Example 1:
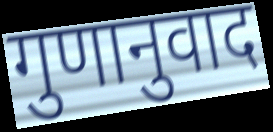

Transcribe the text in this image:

गुणानुवाद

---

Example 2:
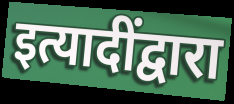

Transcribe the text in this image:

इत्यादींद्वारा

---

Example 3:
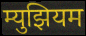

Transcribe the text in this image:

म्युझियम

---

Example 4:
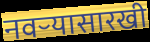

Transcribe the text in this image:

नवऱ्यासारखी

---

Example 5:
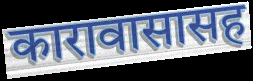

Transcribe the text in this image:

कारावासासह